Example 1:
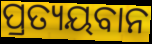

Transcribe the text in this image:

ପ୍ରତ୍ୟୟବାନ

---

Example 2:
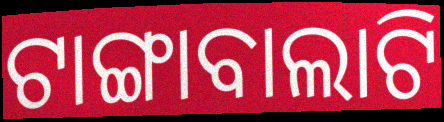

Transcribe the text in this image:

ଟାଙ୍ଗାବାଲାଟି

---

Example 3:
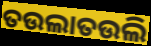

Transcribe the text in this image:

ତଉଲାତଉଲି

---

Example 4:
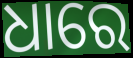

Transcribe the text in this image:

ଧାରେ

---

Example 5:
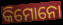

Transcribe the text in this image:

କିମୋନୋ